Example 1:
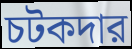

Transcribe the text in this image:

চটকদার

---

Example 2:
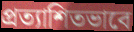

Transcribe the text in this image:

প্রত্যাশিতভাবে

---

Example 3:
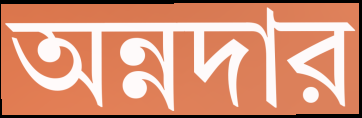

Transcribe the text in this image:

অন্নদার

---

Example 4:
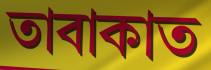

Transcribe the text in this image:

তাবাকাত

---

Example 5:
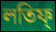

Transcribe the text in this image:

লতিফ্